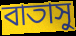
বাতাসু